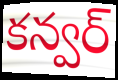
కన్వర్